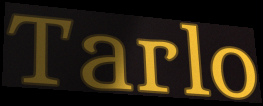
Tarlo